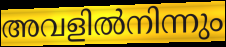
അവളിൽനിന്നും